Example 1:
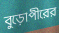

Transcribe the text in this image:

বুড়োপীরের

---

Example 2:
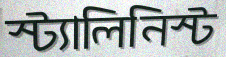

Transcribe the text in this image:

স্ট্যালিনিস্ট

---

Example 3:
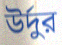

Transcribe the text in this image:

উর্দুর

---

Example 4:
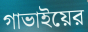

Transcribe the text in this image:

গাভাইয়ের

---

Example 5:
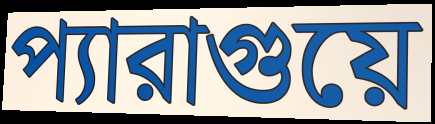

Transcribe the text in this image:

প্যারাগুয়ে